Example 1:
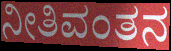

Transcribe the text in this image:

ನೀತಿವಂತನ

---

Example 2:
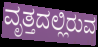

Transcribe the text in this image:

ವೃತ್ತದಲ್ಲಿರುವ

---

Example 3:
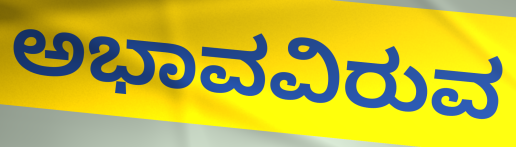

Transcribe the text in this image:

ಅಭಾವವಿರುವ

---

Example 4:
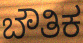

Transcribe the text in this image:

ಬೌತಿಕ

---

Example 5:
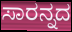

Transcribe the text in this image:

ಸಾರನ್ನದ